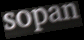
sopan